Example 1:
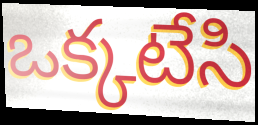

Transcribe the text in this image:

ఒక్కటేసి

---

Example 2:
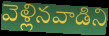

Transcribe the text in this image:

వెళ్లినవాడిని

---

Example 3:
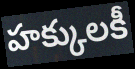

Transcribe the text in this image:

హక్కులకీ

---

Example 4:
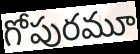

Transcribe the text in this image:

గోపురమూ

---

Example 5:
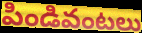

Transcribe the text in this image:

పిండివంటలు